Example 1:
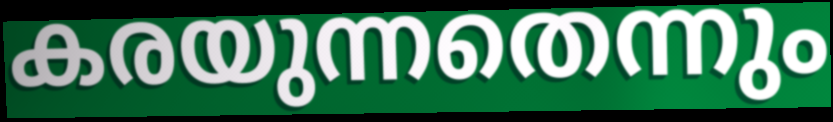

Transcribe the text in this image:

കരയുന്നതെന്നും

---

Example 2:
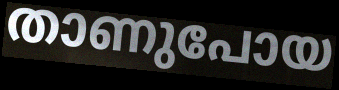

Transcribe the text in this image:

താണുപോയ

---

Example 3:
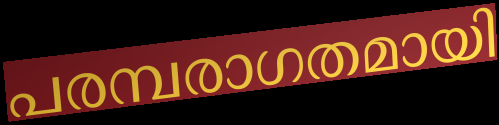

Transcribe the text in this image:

പരമ്പരാഗതമായി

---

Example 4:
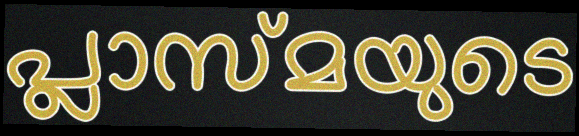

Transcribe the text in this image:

പ്ലാസ്മയുടെ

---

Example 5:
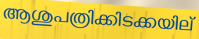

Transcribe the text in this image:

ആശുപത്രിക്കിടക്കയില്